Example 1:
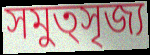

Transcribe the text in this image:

সমুত্সৃজ্য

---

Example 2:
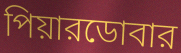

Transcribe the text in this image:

পিয়ারডোবার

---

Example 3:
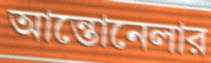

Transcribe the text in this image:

আন্তোনেলার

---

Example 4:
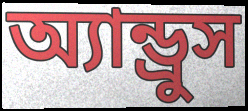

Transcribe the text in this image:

অ্যান্ড্রুস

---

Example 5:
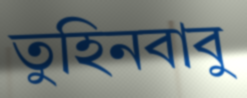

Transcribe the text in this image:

তুহিনবাবু